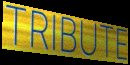
TRIBUTE